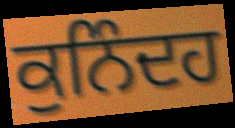
ਕੁਨਿੰਦਹ